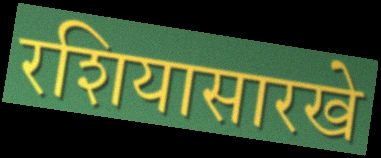
रशियासारखे